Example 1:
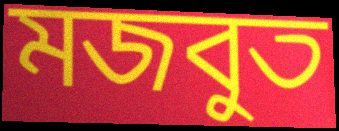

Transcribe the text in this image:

মজবুত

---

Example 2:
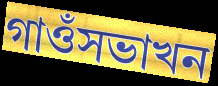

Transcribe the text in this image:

গাওঁসভাখন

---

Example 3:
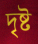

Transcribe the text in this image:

দৃষ্ট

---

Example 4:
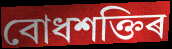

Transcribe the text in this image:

বোধশক্তিৰ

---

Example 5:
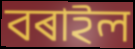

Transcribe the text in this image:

বৰাইল